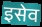
इसेव